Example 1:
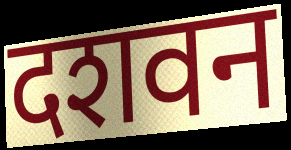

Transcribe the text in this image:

दशवन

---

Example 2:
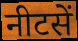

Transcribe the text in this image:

नीटसें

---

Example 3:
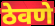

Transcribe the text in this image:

ठेवणे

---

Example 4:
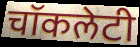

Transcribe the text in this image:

चॉकलेटी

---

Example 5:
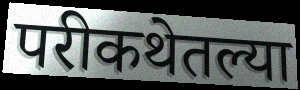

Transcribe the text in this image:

परीकथेतल्या